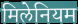
मिलेनियम